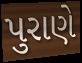
પુરાણે